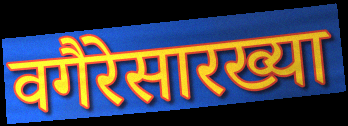
वगैरेसारख्या